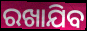
ରଖାଯିବ